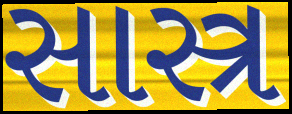
સાસ્ત્ર